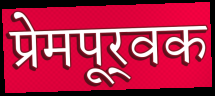
प्रेमपूर्वक